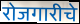
रोजगारीचे